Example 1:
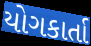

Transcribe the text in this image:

યોગકાર્તા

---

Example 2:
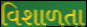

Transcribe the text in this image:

વિશાળતા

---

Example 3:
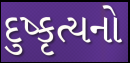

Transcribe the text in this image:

દુષ્કૃત્યનો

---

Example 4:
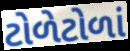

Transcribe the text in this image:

ટોળેટોળાં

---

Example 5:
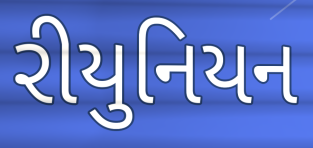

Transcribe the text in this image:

રીયુનિયન